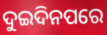
ଦୁଇଦିନପରେ